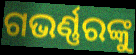
ଗଭର୍ଣ୍ଣରଙ୍କୁ